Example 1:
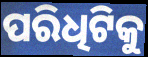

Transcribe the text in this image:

ପରିଧିଟିକୁ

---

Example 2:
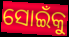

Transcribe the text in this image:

ସୋଇଁକୁ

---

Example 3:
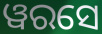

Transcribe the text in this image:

ୱରସେ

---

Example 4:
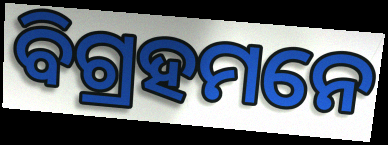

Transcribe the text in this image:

ବିଗ୍ରହମନେ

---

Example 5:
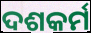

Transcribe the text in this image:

ଦଶକର୍ମ